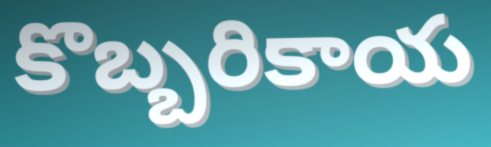
కొబ్బరికాయ